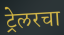
ट्रेलरचा